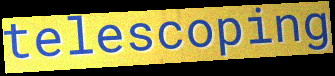
telescoping